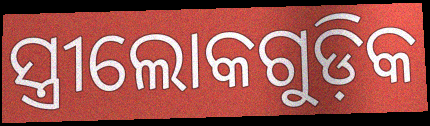
ସ୍ତ୍ରୀଲୋକଗୁଡ଼ିକ